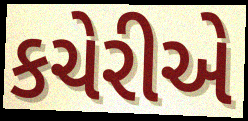
કચેરીએ